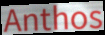
Anthos